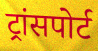
ट्रांसपोर्ट